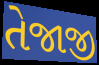
તેજાજી